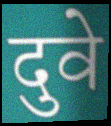
दुवे